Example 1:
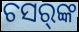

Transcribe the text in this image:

ଚସର୍‌ଙ୍କ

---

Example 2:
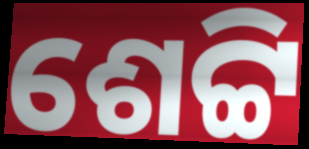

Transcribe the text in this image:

ଶେଟ୍ଟି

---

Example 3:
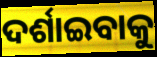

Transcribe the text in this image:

ଦର୍ଶାଇବାକୁ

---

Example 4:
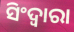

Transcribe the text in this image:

ସିଂଦ୍ୱାରା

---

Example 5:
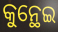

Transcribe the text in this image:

କୁନ୍ଥେଇ